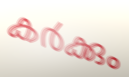
കർക്കും